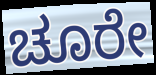
ಚೂರೇ